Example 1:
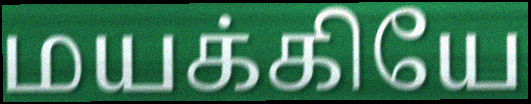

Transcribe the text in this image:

மயக்கியே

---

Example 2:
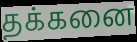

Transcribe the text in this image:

தக்கனை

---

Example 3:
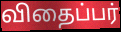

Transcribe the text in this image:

விதைப்பர்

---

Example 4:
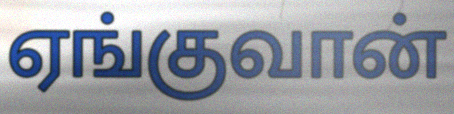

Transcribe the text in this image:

ஏங்குவான்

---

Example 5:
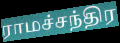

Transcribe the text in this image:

ராமச்சந்திர